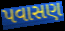
પવાસણ